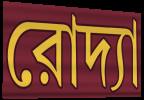
রোদ্যা